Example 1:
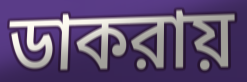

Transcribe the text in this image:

ডাকরায়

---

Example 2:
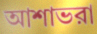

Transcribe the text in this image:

আশাভরা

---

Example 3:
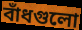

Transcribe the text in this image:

বাঁধগুলো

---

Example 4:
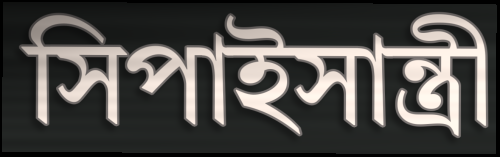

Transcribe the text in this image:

সিপাইসান্ত্রী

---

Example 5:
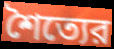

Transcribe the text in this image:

শৈত্যের